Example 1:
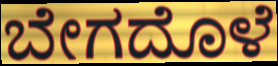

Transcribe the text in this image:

ಬೇಗದೊಳೆ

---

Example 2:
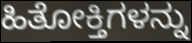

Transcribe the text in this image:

ಹಿತೋಕ್ತಿಗಳನ್ನು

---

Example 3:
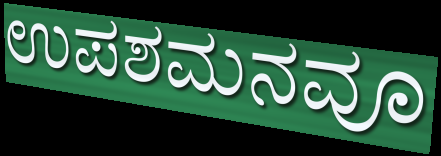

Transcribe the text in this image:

ಉಪಶಮನವೂ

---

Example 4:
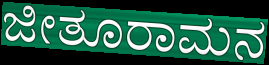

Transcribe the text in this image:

ಜೀತೂರಾಮನ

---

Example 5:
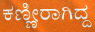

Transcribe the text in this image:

ಕಣ್ಣೀರಾಗಿದ್ದ